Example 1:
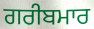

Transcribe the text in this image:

ਗਰੀਬਮਾਰ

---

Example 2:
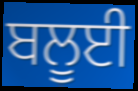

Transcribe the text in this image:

ਬਲੂਈ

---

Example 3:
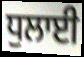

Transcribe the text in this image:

ਧੁਲਾਈ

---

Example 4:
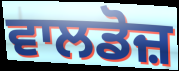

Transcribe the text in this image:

ਵਾਲਡੋਜ਼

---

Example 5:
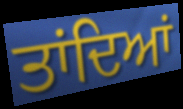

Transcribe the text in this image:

ਤਾਂਦਿਆਂ